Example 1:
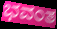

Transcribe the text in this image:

ಭವಂತ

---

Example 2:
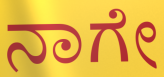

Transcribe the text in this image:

ನಾಗೇ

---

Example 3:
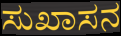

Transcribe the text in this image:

ಸುಖಾಸನ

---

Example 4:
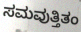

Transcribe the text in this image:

ಸಮವುತ್ತಿತಂ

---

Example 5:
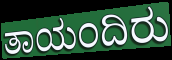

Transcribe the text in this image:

ತಾಯಂದಿರು